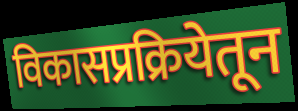
विकासप्रक्रियेतून